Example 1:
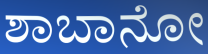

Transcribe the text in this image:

ಶಾಬಾನೋ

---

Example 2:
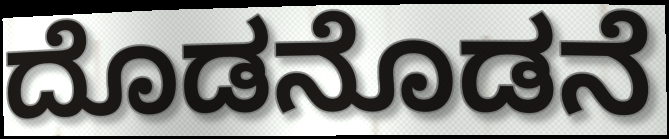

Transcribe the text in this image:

ದೊಡನೊಡನೆ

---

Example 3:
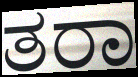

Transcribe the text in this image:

ತರಾ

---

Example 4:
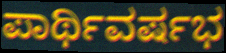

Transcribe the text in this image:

ಪಾರ್ಥಿವರ್ಷಭ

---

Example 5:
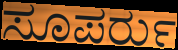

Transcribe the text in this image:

ಸೂಪರ್ರು